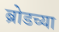
ब्रोडच्या